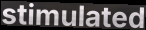
stimulated